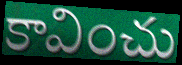
కావించు